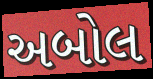
અબોલ